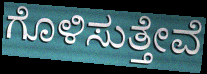
ಗೊಳಿಸುತ್ತೇವೆ